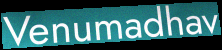
Venumadhav